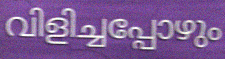
വിളിച്ചപ്പോഴും